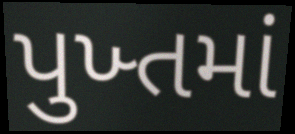
પુખ્તમાં